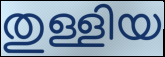
തുള്ളിയ